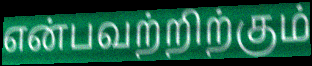
என்பவற்றிற்கும்